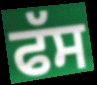
ਫੱਸ